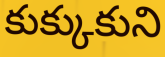
కుక్కుకుని